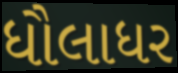
ધૌલાધર